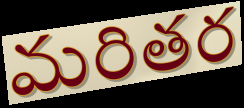
మరితర